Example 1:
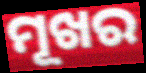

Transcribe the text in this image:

ମୂଖର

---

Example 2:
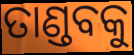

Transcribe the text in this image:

ତାଣ୍ଡବକୁ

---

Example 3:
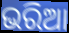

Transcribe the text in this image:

ଭରିଆ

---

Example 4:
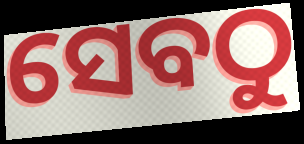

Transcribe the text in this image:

ସେବଠୁ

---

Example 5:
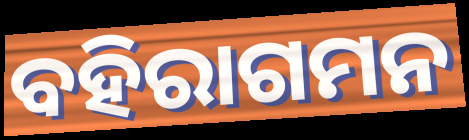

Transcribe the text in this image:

ବହିରାଗମନ